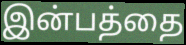
இன்பத்தை